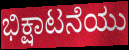
ಭಿಕ್ಷಾಟನೆಯು